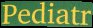
Pediatr